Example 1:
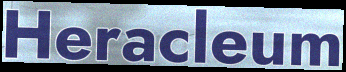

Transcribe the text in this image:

Heracleum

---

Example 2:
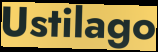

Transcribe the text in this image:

Ustilago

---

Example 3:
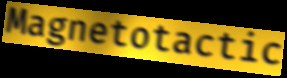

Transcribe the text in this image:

Magnetotactic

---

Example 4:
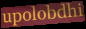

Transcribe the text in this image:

upolobdhi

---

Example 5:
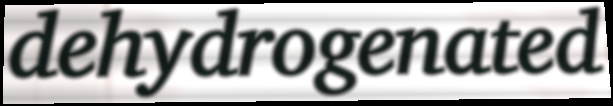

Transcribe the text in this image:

dehydrogenated